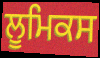
ਲੂਮਿਕਸ